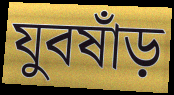
যুবষাঁড়